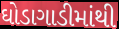
ઘોડાગાડીમાંથી